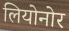
लियोनोर